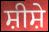
ਸ਼ੀਸ਼ੇ